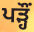
ਪੜ੍ਹੌਂ